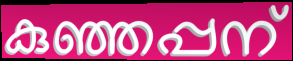
കുഞ്ഞപ്പന്